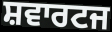
ਸ਼ਵਾਰਟਜ